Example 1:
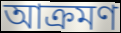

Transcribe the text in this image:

আক্ৰমণ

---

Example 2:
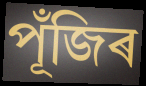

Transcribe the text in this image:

পূঁজিৰ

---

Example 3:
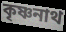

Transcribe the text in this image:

কৃষ্ণনাথ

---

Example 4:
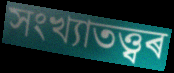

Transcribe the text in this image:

সংখ্যাতত্ত্বৰ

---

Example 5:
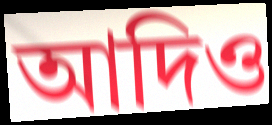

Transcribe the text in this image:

আদিও